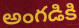
అంగడికి